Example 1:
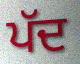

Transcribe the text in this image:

ਪੱਦ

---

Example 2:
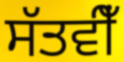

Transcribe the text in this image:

ਸੱਤਵੀਁ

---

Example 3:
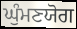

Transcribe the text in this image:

ਘੁੰਮਣਯੋਗ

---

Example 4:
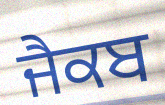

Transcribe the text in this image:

ਜੈਕਬ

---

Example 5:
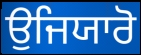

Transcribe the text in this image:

ਉਜਿਯਾਰੋ